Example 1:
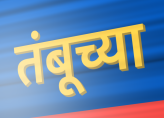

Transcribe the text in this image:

तंबूच्या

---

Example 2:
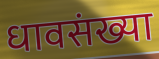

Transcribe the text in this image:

धावसंख्या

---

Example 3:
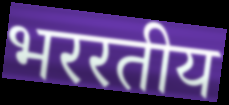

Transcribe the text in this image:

भररतीय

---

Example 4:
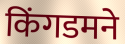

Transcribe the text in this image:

किंगडमने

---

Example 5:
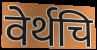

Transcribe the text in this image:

वेर्थचि